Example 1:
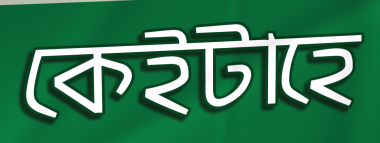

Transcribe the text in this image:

কেইটাহে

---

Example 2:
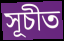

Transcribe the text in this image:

সূচীত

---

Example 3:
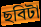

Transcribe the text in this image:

ছবিটা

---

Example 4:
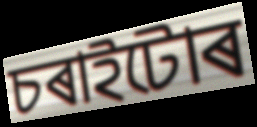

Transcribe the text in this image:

চৰাইটোৰ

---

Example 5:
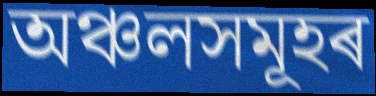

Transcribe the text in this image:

অঞ্চলসমূহৰ